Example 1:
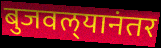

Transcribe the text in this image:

बुजवल्यानंतर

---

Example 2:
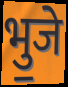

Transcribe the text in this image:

भु॒जे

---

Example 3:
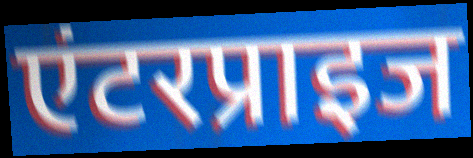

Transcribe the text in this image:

एंटरप्राइज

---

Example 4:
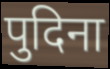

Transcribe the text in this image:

पुदिना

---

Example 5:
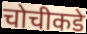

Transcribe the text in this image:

चोचीकडे